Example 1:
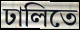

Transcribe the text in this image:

ঢালিতে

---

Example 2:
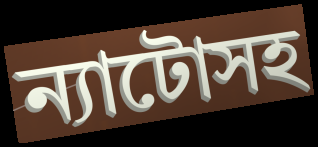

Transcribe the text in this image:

ন্যাটোসহ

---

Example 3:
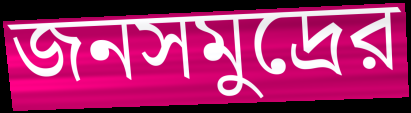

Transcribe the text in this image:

জনসমুদ্রের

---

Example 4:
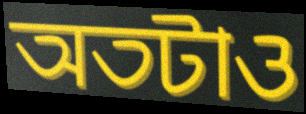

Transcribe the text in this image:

অতটাও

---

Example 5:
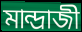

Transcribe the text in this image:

মান্দ্রাজী